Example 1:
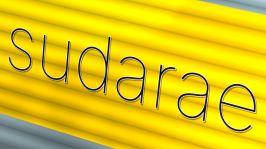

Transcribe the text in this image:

sudarae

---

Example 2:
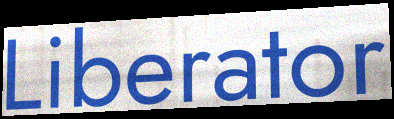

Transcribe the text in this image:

Liberator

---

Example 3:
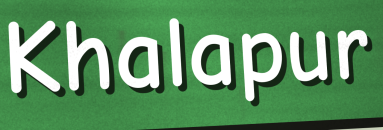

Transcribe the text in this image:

Khalapur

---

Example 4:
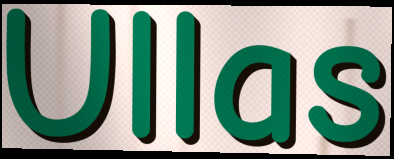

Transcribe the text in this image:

Ullas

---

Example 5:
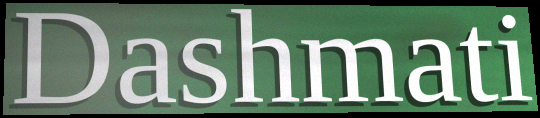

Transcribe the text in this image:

Dashmati